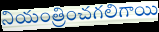
నియంత్రించగలిగాయి